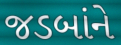
જડબાંને